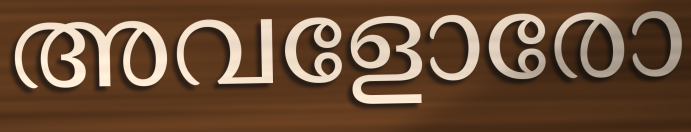
അവളോരോ